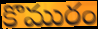
కొమురం